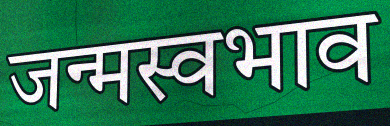
जन्मस्वभाव